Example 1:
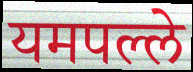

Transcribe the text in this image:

यमपल्ले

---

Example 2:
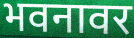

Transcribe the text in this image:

भवनावर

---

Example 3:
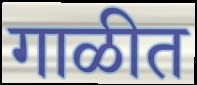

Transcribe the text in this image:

गाळीत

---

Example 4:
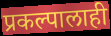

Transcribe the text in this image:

प्रकल्पालाही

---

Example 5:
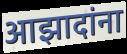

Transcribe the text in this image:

आझादांना